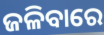
ଜଳିବାରେ